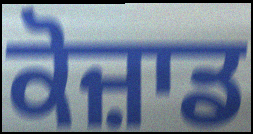
ਕੋਜ਼ਾਡ